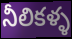
నీలికళ్ళ